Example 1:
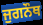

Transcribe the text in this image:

ਜੁਗਨੌਥ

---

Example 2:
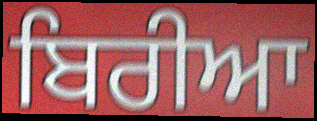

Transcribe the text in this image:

ਬਿਰੀਆ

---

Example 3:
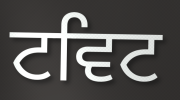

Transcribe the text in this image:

ਟਵਿਟ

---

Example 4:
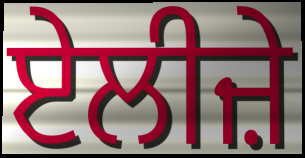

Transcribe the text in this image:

ਏਲੀਜ਼ੇ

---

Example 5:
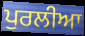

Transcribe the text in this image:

ਪੁਰਲੀਆ